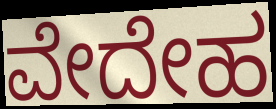
ವೇದೇಹ